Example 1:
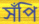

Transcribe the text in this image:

সঁপি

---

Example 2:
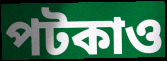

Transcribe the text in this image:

পটকাও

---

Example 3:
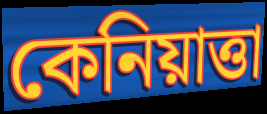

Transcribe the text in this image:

কেনিয়াত্তা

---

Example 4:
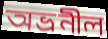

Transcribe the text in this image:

অভ্রনীল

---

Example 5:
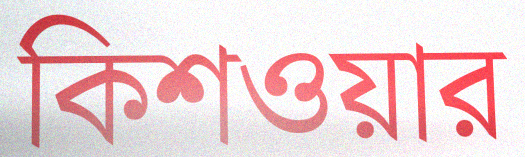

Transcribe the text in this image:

কিশওয়ার